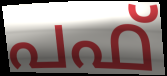
പഫ്